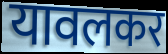
यावलकर